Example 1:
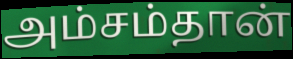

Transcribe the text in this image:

அம்சம்தான்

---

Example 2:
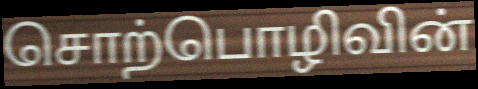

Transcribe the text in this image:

சொற்பொழிவின்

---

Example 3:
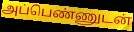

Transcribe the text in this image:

அப்பெண்ணுடன்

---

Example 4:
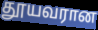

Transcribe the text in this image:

தூயவரான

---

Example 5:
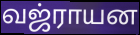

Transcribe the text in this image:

வஜ்ராயன